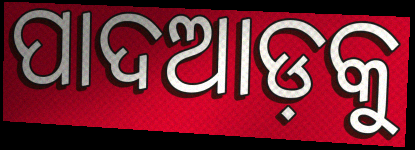
ପାଦଆଡ଼କୁ